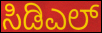
ಸಿಡಿಎಲ್